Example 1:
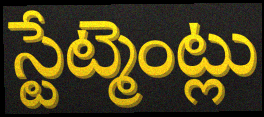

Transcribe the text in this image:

స్టేట్మెంట్లు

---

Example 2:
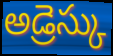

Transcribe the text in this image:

అడ్రెస్కు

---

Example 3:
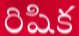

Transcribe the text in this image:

రిషిక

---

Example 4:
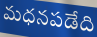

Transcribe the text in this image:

మధనపడేది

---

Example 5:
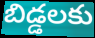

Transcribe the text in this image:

బిడ్డలకు